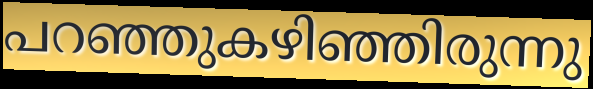
പറഞ്ഞുകഴിഞ്ഞിരുന്നു